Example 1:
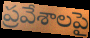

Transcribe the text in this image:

ప్రవేశాలపై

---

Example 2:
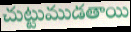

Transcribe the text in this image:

చుట్టుముడతాయి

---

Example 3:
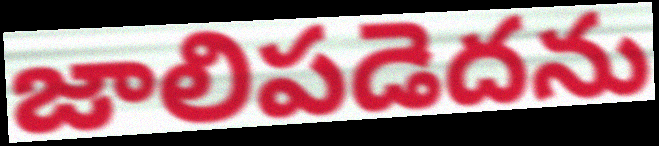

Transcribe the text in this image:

జాలిపడెదను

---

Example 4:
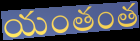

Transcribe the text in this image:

యంతంత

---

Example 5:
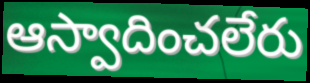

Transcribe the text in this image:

ఆస్వాదించలేరు